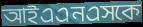
আইএএনএসকে